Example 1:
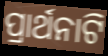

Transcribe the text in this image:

ପ୍ରାର୍ଥନାଟି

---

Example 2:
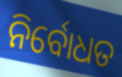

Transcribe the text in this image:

ନିର୍ବୋଧତ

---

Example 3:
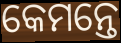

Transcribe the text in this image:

କେମନ୍ତେ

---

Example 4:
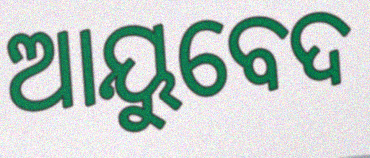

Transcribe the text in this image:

ଆୟୁବେଦ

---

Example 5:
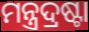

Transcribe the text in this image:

ମନ୍ତ୍ରଦ୍ରଷ୍ଟା